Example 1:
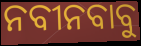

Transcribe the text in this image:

ନବୀନବାବୁ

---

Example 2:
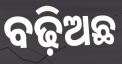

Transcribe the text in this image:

ବଢ଼ିଅଛ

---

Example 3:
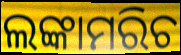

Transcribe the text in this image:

ଲଙ୍କାମରିଚ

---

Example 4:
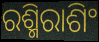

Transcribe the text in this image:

ରଶ୍ମିରାଶିଂ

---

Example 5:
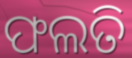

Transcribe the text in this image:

ଫଲତି